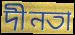
দীনতা